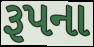
રૂપના